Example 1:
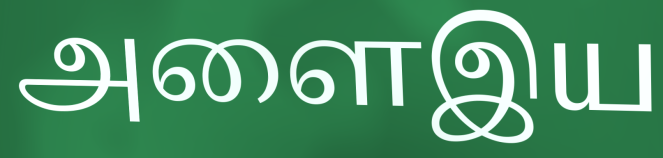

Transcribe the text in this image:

அளைஇய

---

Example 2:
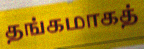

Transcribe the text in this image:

தங்கமாகத்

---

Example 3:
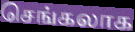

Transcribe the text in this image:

செங்கலாக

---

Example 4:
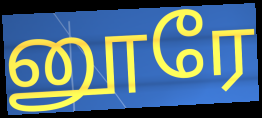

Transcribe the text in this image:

னூரே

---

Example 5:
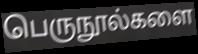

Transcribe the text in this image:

பெருநூல்களை